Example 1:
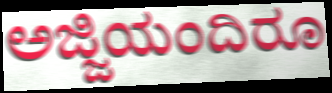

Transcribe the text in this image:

ಅಜ್ಜಿಯಂದಿರೂ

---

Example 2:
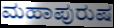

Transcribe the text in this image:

ಮಹಾಪುರುಷ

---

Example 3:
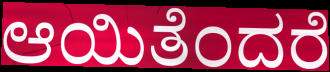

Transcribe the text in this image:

ಆಯಿತೆಂದರೆ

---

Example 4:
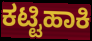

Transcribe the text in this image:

ಕಟ್ಟಿಹಾಕಿ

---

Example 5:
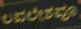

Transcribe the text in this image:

ಲವಲೇಶವೂ